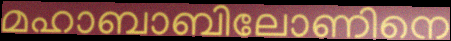
മഹാബാബിലോണിനെ